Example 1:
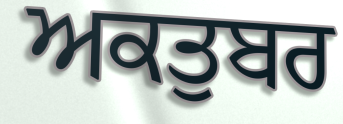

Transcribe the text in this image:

ਅਕਤੁਬਰ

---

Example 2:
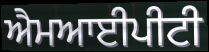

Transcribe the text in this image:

ਐਮਆਈਪੀਟੀ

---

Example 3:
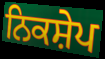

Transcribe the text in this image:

ਨਿਕਸ਼ੇਪ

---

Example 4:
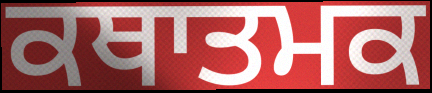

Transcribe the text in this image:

ਕਥਾਤਮਕ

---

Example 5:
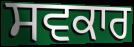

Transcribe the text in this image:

ਸਵਕਾਰ